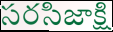
సరసిజాక్షి